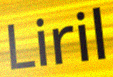
Liril